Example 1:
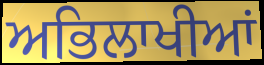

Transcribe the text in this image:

ਅਭਿਲਾਖੀਆਂ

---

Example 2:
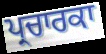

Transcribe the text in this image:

ਪ੍ਰਚਾਰਕਾ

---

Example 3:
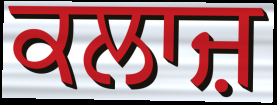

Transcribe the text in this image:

ਕਲਾਜ਼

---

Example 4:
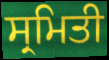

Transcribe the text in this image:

ਸ੍ਰਮਿਤੀ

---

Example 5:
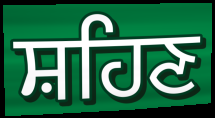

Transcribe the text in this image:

ਸ਼ਹਿਣ